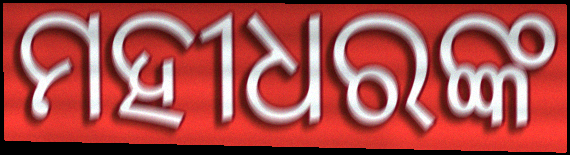
ମହୀଧରଙ୍କ